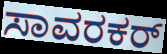
ಸಾವರಕರ್